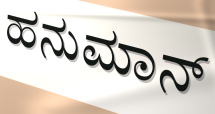
ಹನುಮಾನ್